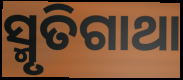
ସ୍ମୃତିଗାଥା